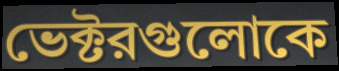
ভেক্টরগুলোকে